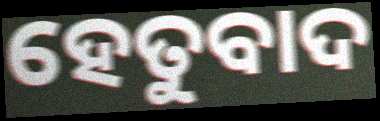
ହେତୁବାଦ